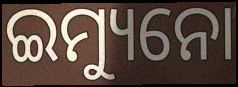
ଇମ୍ୟୁନୋ